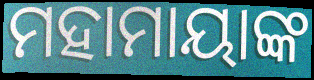
ମହାମାୟାଙ୍କ